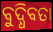
ବୁଦ୍ଧିବତା